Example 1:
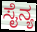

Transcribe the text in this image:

ಸೈನ್ಯ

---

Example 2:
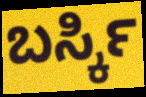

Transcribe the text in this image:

ಬರ್ಸ್ಕಿ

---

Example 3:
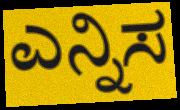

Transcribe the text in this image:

ಎನ್ನಿಸ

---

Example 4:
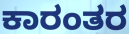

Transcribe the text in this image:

ಕಾರಂತರ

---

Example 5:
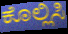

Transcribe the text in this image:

ಕೊಲ್ಲಿಸಿ